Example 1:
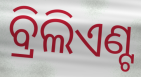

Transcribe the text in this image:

ବ୍ରିଲିଏଣ୍ଟ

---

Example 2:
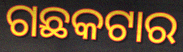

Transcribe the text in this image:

ଗଛକଟାର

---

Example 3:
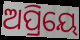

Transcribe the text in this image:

ଅପ୍ରିୟେ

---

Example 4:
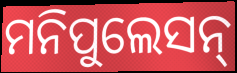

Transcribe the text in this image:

ମନିପୁଲେସନ୍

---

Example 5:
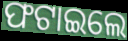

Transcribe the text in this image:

ଫଟାଇଲେ